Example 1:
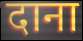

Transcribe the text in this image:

दाना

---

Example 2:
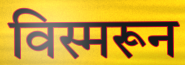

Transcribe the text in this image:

विस्मरून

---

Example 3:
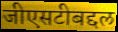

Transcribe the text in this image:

जीएसटीबद्दल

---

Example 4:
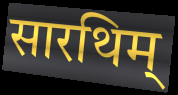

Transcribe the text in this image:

सारथिम्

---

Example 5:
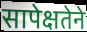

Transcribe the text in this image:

सापेक्षतेने